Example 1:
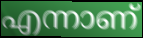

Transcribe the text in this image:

എന്നാണ്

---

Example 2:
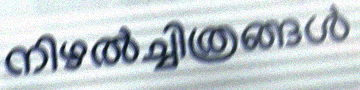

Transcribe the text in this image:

നിഴൽച്ചിത്രങ്ങൾ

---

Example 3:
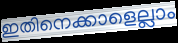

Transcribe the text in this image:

ഇതിനെക്കാളെല്ലാം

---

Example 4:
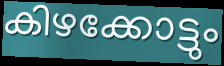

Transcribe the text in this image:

കിഴക്കോട്ടും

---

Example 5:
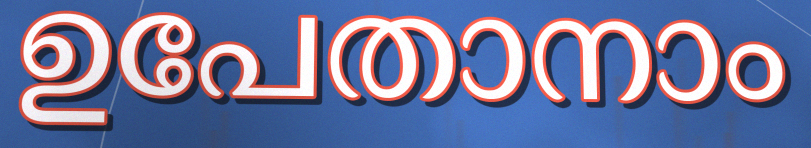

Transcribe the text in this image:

ഉപേതാനാം